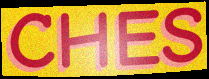
CHES